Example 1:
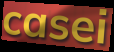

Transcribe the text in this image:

casei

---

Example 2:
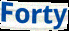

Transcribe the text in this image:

Forty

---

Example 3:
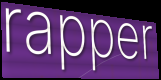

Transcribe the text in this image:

rapper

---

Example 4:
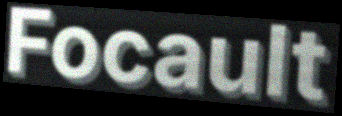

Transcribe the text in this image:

Focault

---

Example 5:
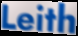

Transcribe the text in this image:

Leith